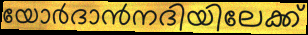
യോർദാൻനദിയിലേക്ക്